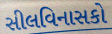
સીલવિનાસકો